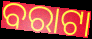
ବରାଟା